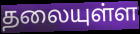
தலையுள்ள